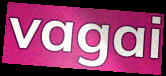
vagai